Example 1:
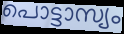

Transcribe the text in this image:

പൊട്ടാസ്യം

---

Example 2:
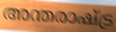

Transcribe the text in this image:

അന്തരാഷ്ട്ര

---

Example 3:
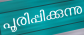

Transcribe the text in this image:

പൂരിപ്പിക്കുന്നു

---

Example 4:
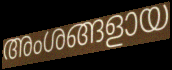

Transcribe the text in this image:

അംശങ്ങളായ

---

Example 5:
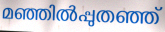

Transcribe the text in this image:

മഞ്ഞിൽപ്പുതഞ്ഞ്